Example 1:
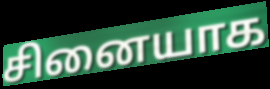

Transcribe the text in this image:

சினையாக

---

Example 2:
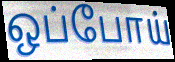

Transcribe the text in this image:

ஒப்போய்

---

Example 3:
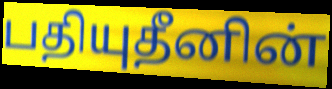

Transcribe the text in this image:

பதியுதீனின்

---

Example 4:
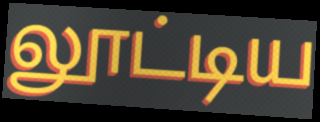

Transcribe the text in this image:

லூட்டிய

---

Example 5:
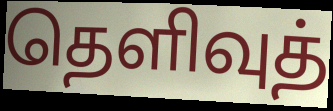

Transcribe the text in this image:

தெளிவுத்